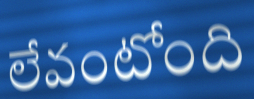
లేవంటోంది